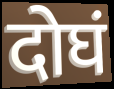
दोघं